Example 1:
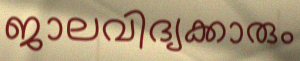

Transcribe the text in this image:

ജാലവിദ്യക്കാരും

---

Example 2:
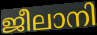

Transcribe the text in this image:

ജീലാനി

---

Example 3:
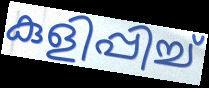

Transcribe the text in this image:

കുളിപ്പിച്ച്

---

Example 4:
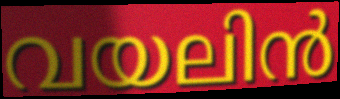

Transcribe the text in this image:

വയലിൻ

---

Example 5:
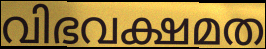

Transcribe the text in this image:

വിഭവക്ഷമത